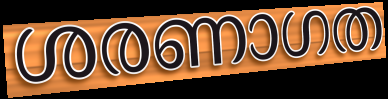
ശരണാഗത